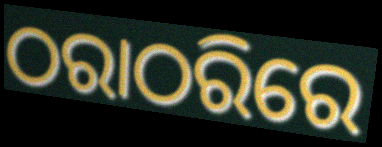
ଠରାଠରିରେ